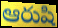
ఆరుషి